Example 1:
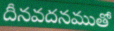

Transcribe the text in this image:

దీనవదనముతో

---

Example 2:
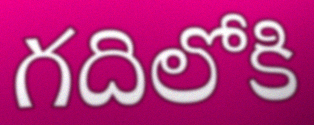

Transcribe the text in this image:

గదిలోకి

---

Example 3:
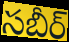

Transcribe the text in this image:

సబీర్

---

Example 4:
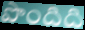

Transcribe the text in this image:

పొందిది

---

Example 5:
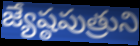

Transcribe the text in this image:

జ్యేష్ఠపుత్రుని